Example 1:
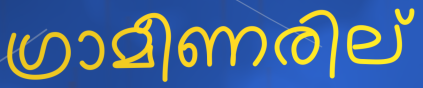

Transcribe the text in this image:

ഗ്രാമീണരില്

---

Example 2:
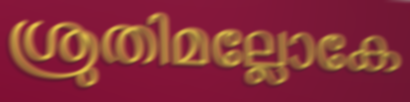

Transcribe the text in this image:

ശ്രുതിമല്ലോകേ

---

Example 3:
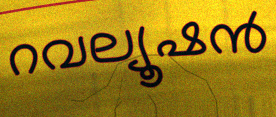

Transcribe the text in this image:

റവല്യൂഷൻ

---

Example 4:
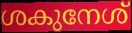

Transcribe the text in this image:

ശകുനേശ്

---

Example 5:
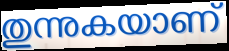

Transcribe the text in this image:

തുന്നുകയാണ്